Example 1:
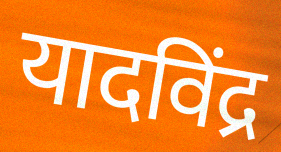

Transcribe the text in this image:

यादविंद्र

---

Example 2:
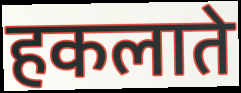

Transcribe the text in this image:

हकलाते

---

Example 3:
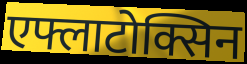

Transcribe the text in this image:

एफ्लाटोक्सिन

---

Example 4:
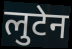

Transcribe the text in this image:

लुटेन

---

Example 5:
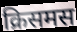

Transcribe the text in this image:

क्रिसमस